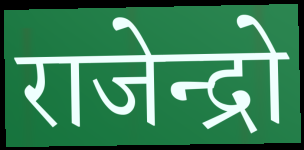
राजेन्द्रो